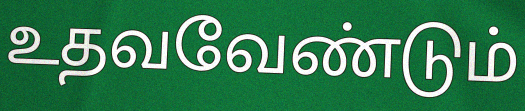
உதவவேண்டும்